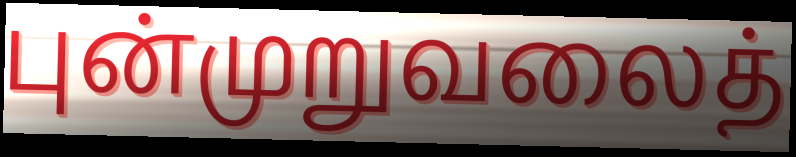
புன்முறுவலைத்